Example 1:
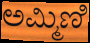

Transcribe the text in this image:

ಅಮ್ಮಿಣಿ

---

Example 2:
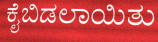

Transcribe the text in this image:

ಕೈಬಿಡಲಾಯಿತು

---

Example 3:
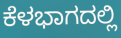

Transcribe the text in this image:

ಕೆಳಭಾಗದಲ್ಲಿ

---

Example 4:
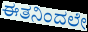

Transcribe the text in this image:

ಈತನಿಂದಲೇ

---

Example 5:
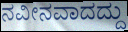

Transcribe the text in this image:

ನವೀನವಾದದ್ದು